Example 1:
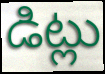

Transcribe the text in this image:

డిట్లు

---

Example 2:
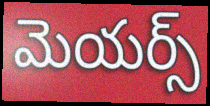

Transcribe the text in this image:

మెయర్స్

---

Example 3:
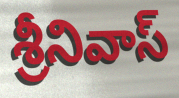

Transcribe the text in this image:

శ్రీనివాస్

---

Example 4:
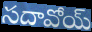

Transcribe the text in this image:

సదావోయ్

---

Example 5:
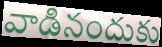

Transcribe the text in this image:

వాడినందుకు